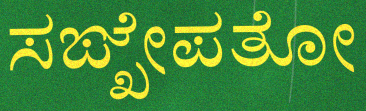
ಸಙ್ಖೇಪತೋ